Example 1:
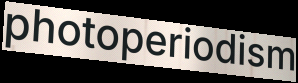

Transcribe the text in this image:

photoperiodism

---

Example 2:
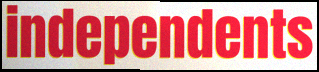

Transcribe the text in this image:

independents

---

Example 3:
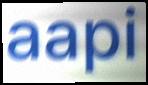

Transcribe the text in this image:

aapi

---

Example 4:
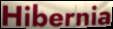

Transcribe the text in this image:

Hibernia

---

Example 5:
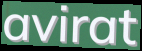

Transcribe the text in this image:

avirat